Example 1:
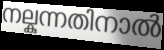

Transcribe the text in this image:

നല്കുന്നതിനാൽ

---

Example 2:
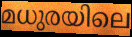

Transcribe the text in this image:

മധുരയിലെ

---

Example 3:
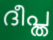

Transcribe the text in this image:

ദീപ്ത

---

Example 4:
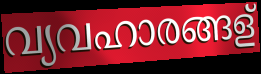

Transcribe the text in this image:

വ്യവഹാരങ്ങള്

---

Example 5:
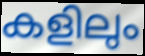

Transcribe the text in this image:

കളിലും